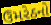
ઉમરેઠનો